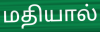
மதியால்